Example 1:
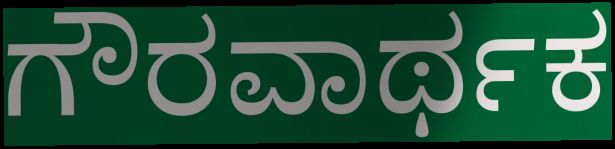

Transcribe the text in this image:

ಗೌರವಾರ್ಥಕ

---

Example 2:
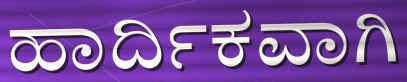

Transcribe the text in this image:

ಹಾರ್ದಿಕವಾಗಿ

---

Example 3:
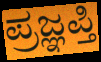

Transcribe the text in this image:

ಪ್ರಜ್ಞಪ್ತಿ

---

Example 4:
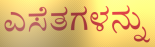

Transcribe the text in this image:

ಎಸೆತಗಳನ್ನು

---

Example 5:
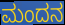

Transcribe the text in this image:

ಮಂದನ